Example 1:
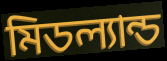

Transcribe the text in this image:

মিডল্যান্ড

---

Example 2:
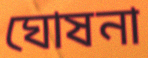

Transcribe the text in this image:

ঘোষনা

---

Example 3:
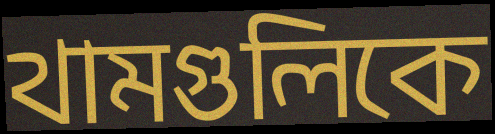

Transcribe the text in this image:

থামগুলিকে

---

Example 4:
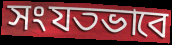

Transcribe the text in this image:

সংযতভাবে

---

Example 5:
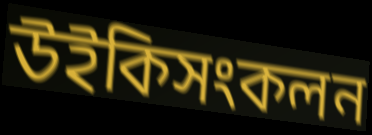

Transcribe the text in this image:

উইকিসংকলন